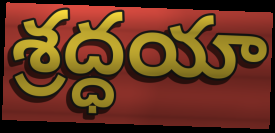
శ్రద్ధయా